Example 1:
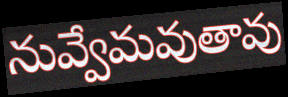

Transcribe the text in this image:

నువ్వేమవుతావు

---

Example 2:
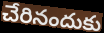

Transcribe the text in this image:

చేరినందుకు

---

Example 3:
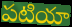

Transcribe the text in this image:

పటియా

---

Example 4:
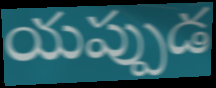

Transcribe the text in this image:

యప్పుడ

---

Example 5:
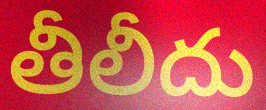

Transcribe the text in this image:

తీలీదు